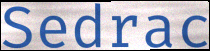
Sedrac